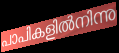
പാപികളിൽനിന്നു